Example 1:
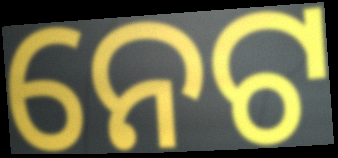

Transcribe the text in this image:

ନେଟ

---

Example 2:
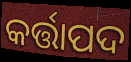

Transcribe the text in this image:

କର୍ତ୍ତାପଦ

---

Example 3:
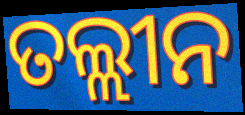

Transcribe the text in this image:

ତଲ୍ଲୀନ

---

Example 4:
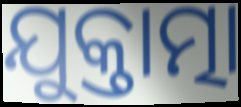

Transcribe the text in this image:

ଯୁକ୍ତାତ୍ମା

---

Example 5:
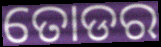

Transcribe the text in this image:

ତୋଡର